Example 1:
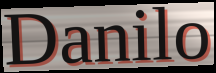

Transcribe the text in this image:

Danilo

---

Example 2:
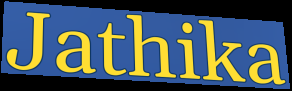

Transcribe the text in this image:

Jathika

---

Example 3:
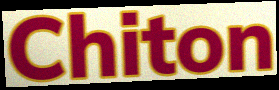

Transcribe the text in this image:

Chiton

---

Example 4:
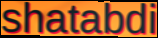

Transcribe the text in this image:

shatabdi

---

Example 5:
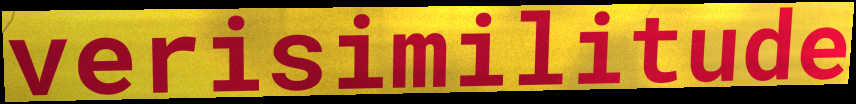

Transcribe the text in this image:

verisimilitude